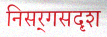
निसर्गसदृश